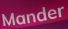
Mander